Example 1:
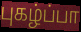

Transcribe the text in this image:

புகழ்ப்பா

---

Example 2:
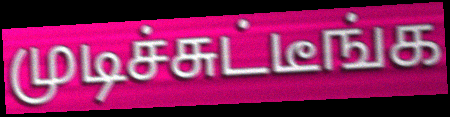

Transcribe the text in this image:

முடிச்சுட்டீங்க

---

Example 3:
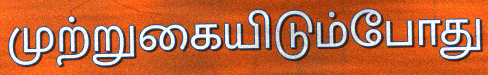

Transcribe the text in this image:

முற்றுகையிடும்போது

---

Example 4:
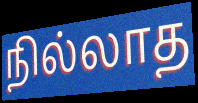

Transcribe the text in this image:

நில்லாத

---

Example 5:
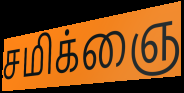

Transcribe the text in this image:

சமிக்ஞை